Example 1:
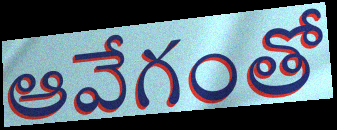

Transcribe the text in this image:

ఆవేగంతో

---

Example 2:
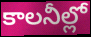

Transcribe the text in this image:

కాలనీల్లో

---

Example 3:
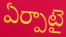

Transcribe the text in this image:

ఏర్పాటై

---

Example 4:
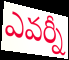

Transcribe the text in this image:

ఎవర్నీ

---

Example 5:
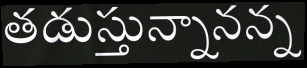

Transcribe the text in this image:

తడుస్తున్నానన్న